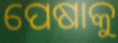
ପେଷାକୁ